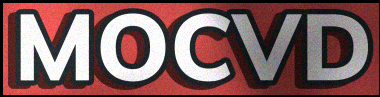
MOCVD